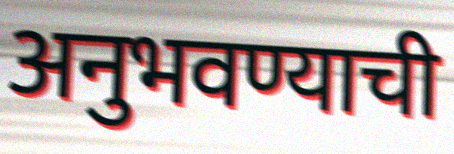
अनुभवण्याची